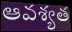
ఆవశ్యత